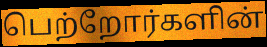
பெற்றோர்களின்